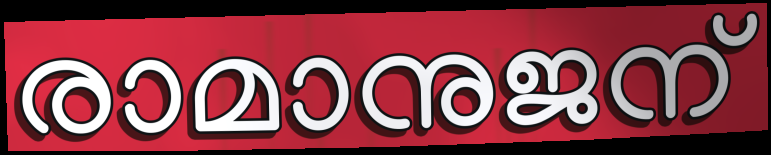
രാമാനുജന്